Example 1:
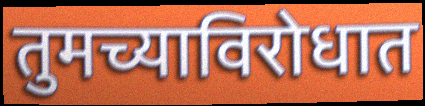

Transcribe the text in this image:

तुमच्याविरोधात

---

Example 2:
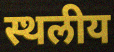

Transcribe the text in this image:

स्थलीय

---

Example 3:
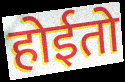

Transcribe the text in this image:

होईतो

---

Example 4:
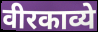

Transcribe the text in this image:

वीरकाव्ये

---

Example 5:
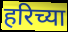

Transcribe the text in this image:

हरिच्या